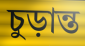
চুড়ান্ত